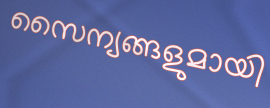
സൈന്യങ്ങളുമായി